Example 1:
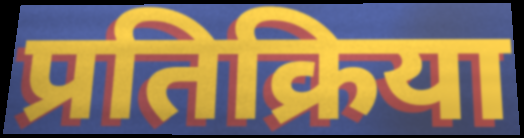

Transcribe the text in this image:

प्रतिक्रिया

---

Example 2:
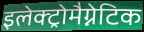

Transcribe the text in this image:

इलेक्ट्रोमैग्नेटिक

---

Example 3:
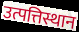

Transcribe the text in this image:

उत्पत्तिस्थान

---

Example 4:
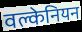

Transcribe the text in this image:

वल्केनियन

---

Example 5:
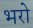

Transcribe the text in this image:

भरो